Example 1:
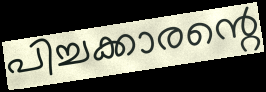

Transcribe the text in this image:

പിച്ചക്കാരന്റെ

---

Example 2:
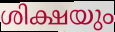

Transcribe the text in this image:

ശിക്ഷയും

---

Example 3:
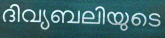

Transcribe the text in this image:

ദിവ്യബലിയുടെ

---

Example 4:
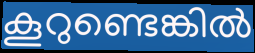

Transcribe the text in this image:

കൂറുണ്ടെങ്കിൽ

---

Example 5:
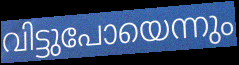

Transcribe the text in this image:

വിട്ടുപോയെന്നും